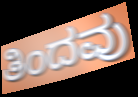
ತಿಂದವು